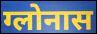
ग्लोनास